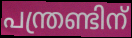
പന്ത്രണ്ടിന്